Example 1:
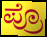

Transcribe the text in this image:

ಪ್ರೊ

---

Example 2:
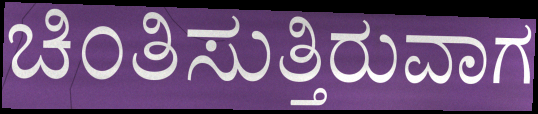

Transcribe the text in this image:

ಚಿಂತಿಸುತ್ತಿರುವಾಗ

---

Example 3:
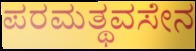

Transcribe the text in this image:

ಪರಮತ್ಥವಸೇನ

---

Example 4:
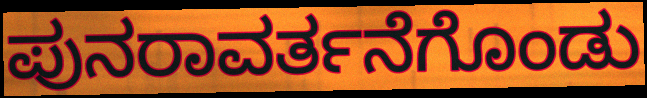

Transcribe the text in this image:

ಪುನರಾವರ್ತನೆಗೊಂಡು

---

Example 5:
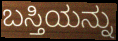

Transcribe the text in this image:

ಬಸ್ತಿಯನ್ನು